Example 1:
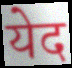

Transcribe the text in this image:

येद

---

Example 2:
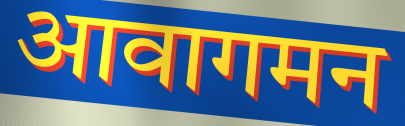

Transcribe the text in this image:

आवागमन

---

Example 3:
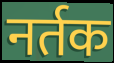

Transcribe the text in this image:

नर्तक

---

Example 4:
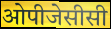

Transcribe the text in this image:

ओपीजेसीसी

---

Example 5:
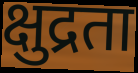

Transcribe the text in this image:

क्षुद्रता